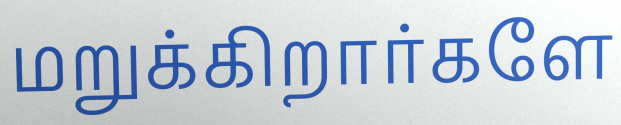
மறுக்கிறார்களே